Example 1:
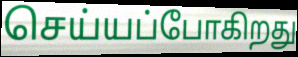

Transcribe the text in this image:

செய்யப்போகிறது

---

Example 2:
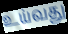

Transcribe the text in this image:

உய்வது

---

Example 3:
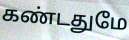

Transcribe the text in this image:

கண்டதுமே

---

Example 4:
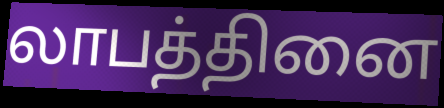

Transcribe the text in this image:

லாபத்தினை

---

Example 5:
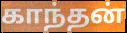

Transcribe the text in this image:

காந்தன்